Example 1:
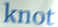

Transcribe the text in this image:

knot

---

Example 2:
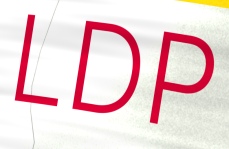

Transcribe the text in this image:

LDP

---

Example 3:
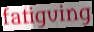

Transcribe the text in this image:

fatiguing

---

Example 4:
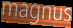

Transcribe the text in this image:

magnus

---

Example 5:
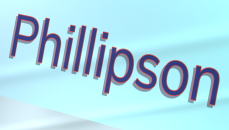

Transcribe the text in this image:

Phillipson